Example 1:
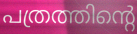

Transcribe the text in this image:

പത്രത്തിന്റെ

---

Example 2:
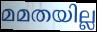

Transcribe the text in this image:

മമതയില്ല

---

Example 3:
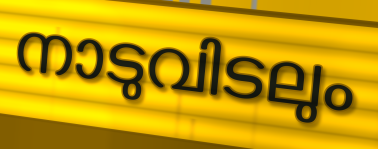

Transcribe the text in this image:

നാടുവിടലും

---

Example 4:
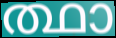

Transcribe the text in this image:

ത്ഥാ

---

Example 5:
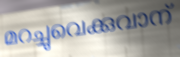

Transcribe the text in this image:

മറച്ചുവെക്കുവാന്